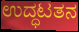
ಉದ್ಧಟತನ